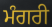
ਮੰਗਰੀ